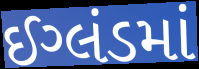
ઈગ્લંડમાં